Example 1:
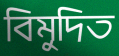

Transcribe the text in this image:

বিমুদিত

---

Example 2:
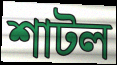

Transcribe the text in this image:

শাটল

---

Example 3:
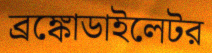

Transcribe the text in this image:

ব্রঙ্কোডাইলেটর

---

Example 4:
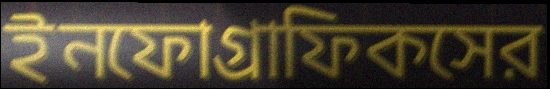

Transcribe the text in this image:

ইনফোগ্রাফিকসের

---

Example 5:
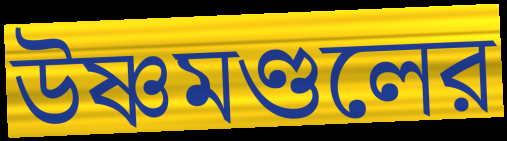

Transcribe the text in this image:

উষ্ণমণ্ডলের